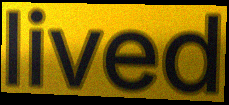
lived